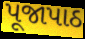
પૂજાપાઠ